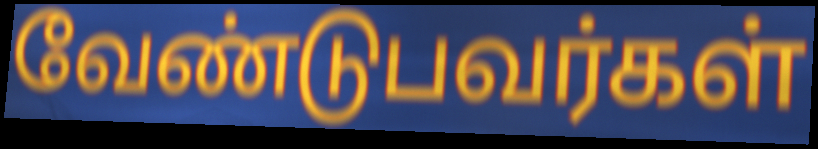
வேண்டுபவர்கள்